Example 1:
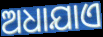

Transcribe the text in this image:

ଅଧାଯାଏ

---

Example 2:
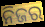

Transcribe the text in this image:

ନିଜର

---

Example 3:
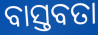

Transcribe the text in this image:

ବାସ୍ତବତା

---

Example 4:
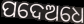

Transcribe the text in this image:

ପଦେଅଧେ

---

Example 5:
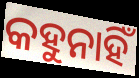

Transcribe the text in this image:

କହୁନାହିଁ